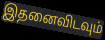
இதனைவிடவும்